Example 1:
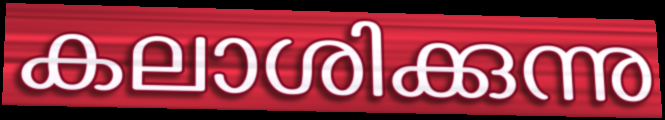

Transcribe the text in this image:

കലാശിക്കുന്നു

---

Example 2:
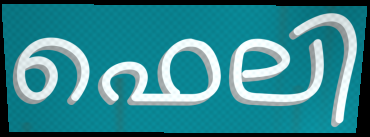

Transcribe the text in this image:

ഫെലി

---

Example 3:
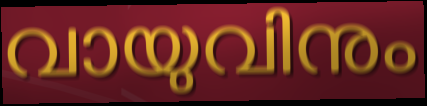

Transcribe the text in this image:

വായുവിനും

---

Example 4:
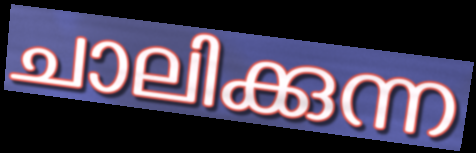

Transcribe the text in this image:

ചാലിക്കുന്ന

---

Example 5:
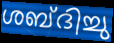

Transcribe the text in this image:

ശബ്ദിച്ചു